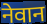
नेवान